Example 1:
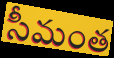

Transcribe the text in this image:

సీమంత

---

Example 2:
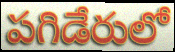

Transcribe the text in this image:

పగిడేరులో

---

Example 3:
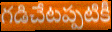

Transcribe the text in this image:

గడిచేటప్పటికీ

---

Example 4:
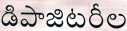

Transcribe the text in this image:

డిపాజిటరీల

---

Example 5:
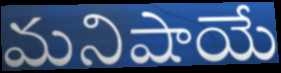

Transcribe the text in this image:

మనిషాయే